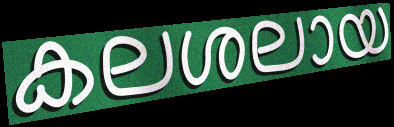
കലശലായ